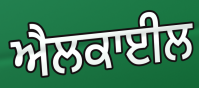
ਐਲਕਾਈਲ